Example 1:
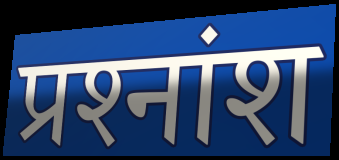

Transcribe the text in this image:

प्रश्‍नांश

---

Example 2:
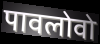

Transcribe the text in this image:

पावलोवो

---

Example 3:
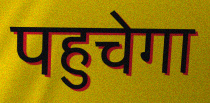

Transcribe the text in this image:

पहुचेगा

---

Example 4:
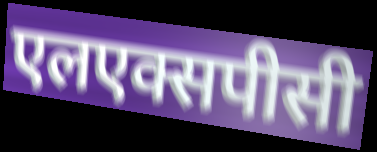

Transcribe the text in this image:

एलएक्सपीसी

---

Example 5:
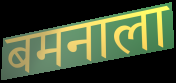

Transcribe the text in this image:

बमनाला